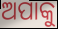
ଅପାକୁ